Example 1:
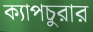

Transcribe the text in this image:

ক্যাপচুরার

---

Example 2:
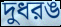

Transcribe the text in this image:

দুধরঙ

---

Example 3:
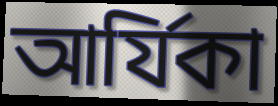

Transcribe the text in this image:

আর্যিকা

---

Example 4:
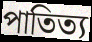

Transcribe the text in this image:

পাতিত্য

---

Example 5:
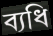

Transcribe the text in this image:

ব্যধি